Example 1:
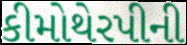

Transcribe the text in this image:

કીમોથેરપીની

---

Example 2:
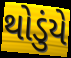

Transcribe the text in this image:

થોડુંયે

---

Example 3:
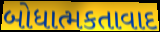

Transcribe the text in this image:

બોધાત્મકતાવાદ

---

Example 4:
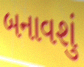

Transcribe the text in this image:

બનાવશું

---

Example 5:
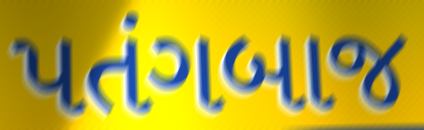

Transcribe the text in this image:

પતંગબાજ